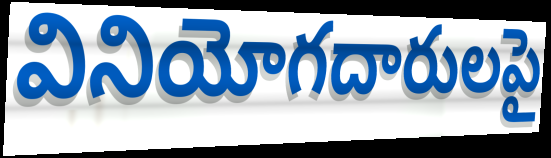
వినియోగదారులపై